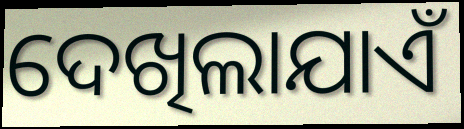
ଦେଖିଲାଯାଏଁ